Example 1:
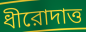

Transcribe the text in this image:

ধীরোদাত্ত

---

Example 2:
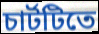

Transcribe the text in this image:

চার্টটিতে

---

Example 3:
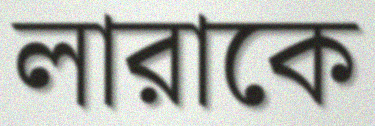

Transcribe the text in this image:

লারাকে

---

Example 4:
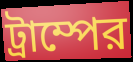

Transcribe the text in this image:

ট্রাম্পের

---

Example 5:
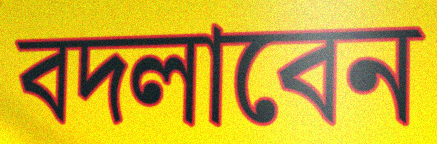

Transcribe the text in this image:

বদলাবেন